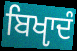
ਬਿਖੵਾਦੰ